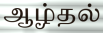
ஆழ்தல்